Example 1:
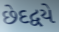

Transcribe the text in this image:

છેદદ્વયે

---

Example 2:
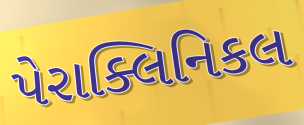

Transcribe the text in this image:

પેરાક્લિનિકલ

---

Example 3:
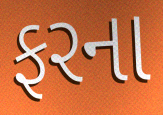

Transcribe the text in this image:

ફરના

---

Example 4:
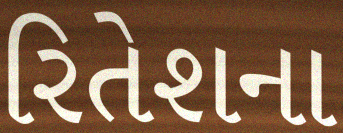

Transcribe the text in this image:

રિતેશના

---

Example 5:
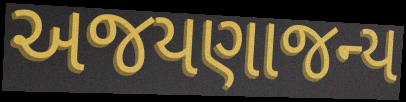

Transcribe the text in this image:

અજયણાજન્ય